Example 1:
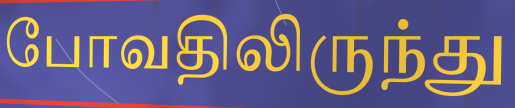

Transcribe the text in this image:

போவதிலிருந்து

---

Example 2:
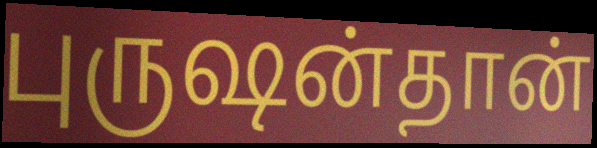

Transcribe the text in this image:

புருஷன்தான்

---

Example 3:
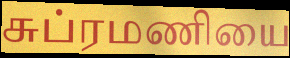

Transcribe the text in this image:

சுப்ரமணியை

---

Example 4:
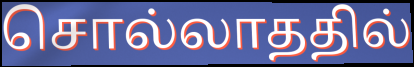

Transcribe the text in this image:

சொல்லாததில்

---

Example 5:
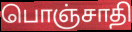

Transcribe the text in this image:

பொஞ்சாதி